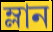
ম্লান